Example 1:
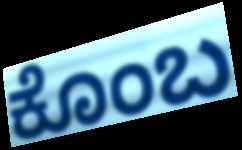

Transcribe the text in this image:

ಕೊಂಬ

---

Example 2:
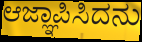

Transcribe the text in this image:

ಆಜ್ಞಾಪಿಸಿದನು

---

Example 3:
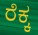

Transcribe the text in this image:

ರೆಕ್ಕ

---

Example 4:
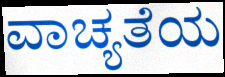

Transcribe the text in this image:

ವಾಚ್ಯತೆಯ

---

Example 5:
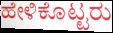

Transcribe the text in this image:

ಹೇಳಿಕೊಟ್ಟರು